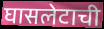
घासलेटाची